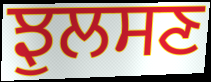
ਝੁਲਸਣ